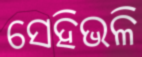
ସେହିଭଳି